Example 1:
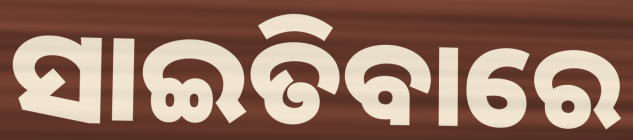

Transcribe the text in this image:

ସାଇତିବାରେ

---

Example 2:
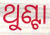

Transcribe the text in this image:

ଥୁଣ୍ଟା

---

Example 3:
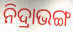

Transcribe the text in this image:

ନିଦ୍ରାଭଙ୍ଗ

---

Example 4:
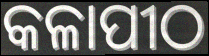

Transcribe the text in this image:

କଳାପୀଠ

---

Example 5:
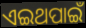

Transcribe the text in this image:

ଏଇଥପାଇଁ